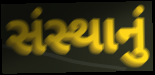
સંસ્થાનું